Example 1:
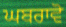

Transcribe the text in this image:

ਘਬਰਾਵੋ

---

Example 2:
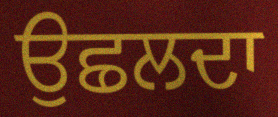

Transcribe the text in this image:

ਉਛਲਦਾ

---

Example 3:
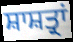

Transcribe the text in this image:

ਸ਼ਾਸ਼ਤ੍ਰਾਂ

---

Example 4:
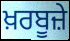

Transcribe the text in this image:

ਖ਼ਰਬੂਜ਼ੇ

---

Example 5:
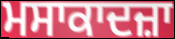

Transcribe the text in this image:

ਮਸਾਕਾਦਜ਼ਾ